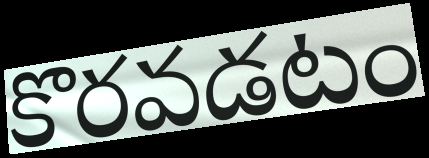
కొరవడటం